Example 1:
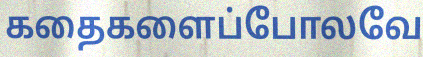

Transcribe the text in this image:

கதைகளைப்போலவே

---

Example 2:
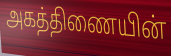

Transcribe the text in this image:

அகத்திணையின்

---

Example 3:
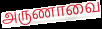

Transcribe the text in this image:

அருணாவை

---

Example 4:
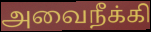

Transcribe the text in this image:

அவைநீக்கி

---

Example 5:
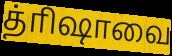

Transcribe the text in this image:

த்ரிஷாவை